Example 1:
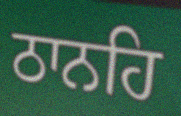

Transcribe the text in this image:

ਠਾਨਹਿ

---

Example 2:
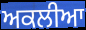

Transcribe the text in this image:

ਅਕਲੀਆ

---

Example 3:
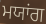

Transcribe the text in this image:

ਮਯਾਂਗ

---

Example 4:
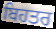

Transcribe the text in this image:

ਬਿਹਤਰ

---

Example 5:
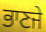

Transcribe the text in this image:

ਭਾਣਜੇ